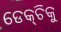
ଡେକ୍‌ଚିକୁ